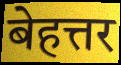
बेहत्तर